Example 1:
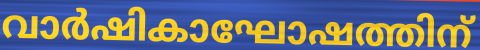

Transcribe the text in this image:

വാർഷികാഘോഷത്തിന്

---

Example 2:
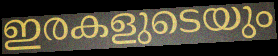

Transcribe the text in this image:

ഇരകളുടെയും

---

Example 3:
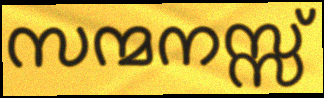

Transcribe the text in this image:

സന്മനസ്സ്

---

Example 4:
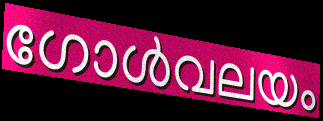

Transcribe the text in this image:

ഗോൾവലയം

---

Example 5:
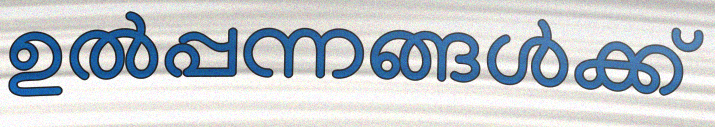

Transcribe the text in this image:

ഉൽപ്പന്നങ്ങൾക്ക്